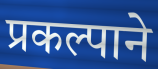
प्रकल्पाने